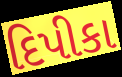
દિપીકા